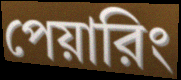
পেয়ারিং